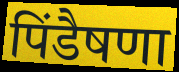
पिंडैषणा